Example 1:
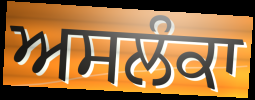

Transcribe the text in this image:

ਅਸਲੰਕਾ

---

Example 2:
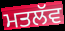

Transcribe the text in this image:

ਮਤਲੱਵ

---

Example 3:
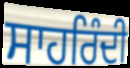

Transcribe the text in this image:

ਸਾਹਰਿੰਦੀ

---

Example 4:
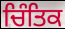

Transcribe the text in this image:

ਚਿੰਤਿਕ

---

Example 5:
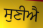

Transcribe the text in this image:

ਸੁਣੀਐ